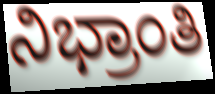
ನಿಭ್ರಾಂತಿ